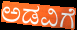
ಅಡವಿಗೆ